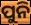
ପୁନି